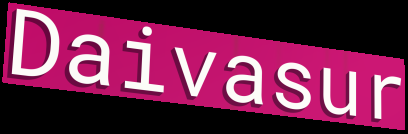
Daivasur